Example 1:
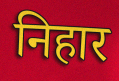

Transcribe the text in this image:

निहार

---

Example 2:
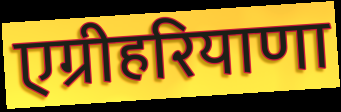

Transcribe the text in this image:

एग्रीहरियाणा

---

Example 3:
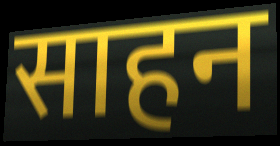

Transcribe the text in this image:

साहन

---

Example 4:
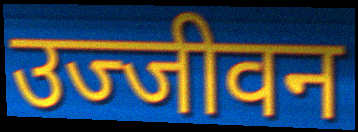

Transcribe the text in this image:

उज्जीवन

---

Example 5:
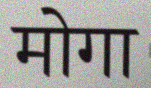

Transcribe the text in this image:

मोगा